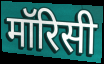
मॉरिसी